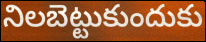
నిలబెట్టుకుందుకు